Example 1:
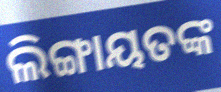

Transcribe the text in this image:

ଲିଙ୍ଗାୟତଙ୍କ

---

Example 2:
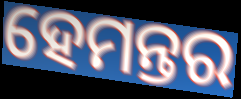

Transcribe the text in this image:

ହେମନ୍ତର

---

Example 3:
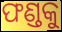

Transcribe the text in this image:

ଫଣ୍ଡକୁ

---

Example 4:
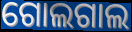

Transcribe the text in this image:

ଗୋଲଗାଲ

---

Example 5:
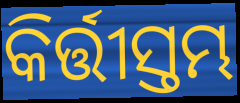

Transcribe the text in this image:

କିର୍ତ୍ତୀସ୍ତମ୍ଭ